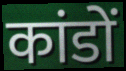
कांडों